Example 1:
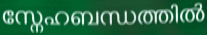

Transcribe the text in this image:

സ്നേഹബന്ധത്തിൽ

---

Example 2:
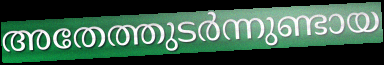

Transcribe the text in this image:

അതേത്തുടർന്നുണ്ടായ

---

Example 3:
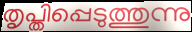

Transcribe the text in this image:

തൃപ്തിപ്പെടുത്തുന്നു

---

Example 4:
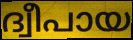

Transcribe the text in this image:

ദ്വീപായ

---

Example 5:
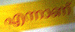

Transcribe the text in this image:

എന്നാണ്